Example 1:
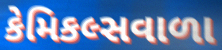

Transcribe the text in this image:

કેમિકલ્સવાળા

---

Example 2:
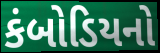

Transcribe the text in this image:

કંબોડિયનો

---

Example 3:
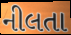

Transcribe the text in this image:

નીલતા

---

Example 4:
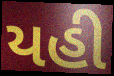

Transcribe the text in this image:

યહી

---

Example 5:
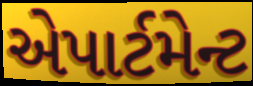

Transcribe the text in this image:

એપાર્ટમેન્ટ